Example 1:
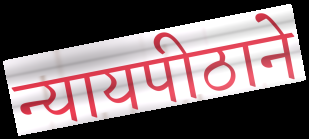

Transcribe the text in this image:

न्यायपीठाने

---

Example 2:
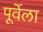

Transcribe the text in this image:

पूर्वेला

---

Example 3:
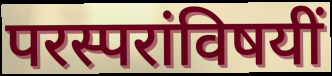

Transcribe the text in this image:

परस्परांविषयीं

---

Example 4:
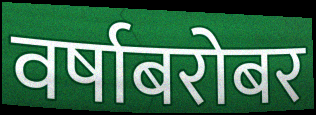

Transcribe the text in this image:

वर्षाबरोबर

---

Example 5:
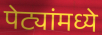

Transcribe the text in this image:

पेट्यांमध्ये